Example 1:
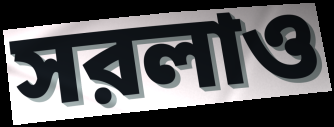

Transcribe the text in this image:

সরলাও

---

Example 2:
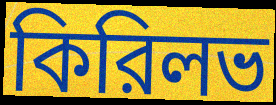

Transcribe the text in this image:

কিরিলভ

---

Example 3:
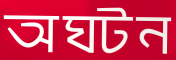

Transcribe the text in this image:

অঘটন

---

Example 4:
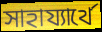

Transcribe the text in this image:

সাহায্যার্থে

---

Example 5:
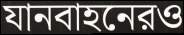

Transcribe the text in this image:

যানবাহনেরও